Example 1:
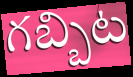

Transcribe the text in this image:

గబ్బిట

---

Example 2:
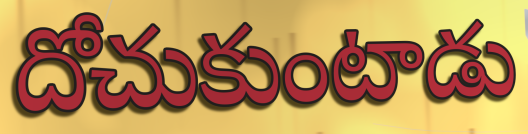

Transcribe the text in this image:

దోచుకుంటాడు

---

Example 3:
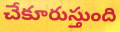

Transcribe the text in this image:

చేకూరుస్తుంది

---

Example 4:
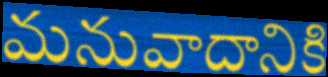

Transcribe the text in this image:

మనువాదానికి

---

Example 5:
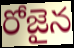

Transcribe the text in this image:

రోజైన